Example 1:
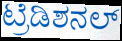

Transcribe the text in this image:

ಟ್ರೆಡಿಶನಲ್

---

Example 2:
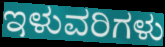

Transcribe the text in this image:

ಇಳುವರಿಗಳು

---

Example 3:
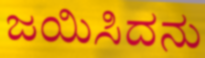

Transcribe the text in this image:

ಜಯಿಸಿದನು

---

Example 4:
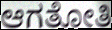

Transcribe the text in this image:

ಆಗತೋತಿ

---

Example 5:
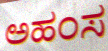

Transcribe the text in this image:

ಅಹಂಸ